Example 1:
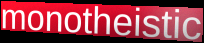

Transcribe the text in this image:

monotheistic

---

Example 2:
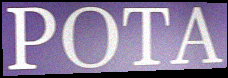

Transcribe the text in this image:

POTA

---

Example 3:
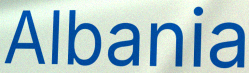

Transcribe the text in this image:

Albania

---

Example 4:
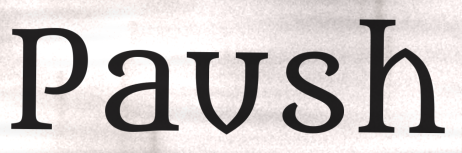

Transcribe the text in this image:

Paush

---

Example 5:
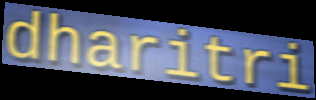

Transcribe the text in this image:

dharitri